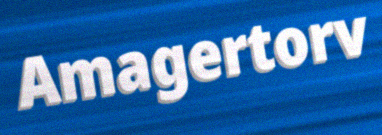
Amagertorv